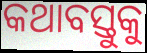
କଥାବସ୍ତୁକୁ